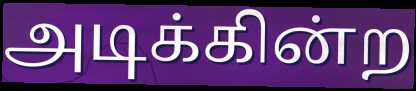
அடிக்கின்ற